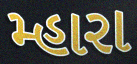
મ્હારા